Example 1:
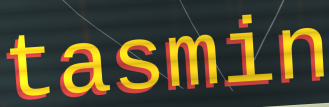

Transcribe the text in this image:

tasmin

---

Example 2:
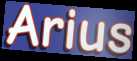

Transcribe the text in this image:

Arius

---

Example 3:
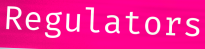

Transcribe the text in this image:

Regulators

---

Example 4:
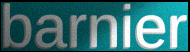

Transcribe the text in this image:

barnier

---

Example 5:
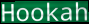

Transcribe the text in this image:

Hookah